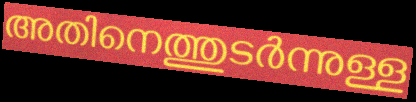
അതിനെത്തുടർന്നുള്ള